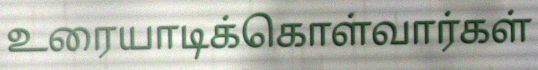
உரையாடிக்கொள்வார்கள்